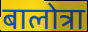
बालोत्रा